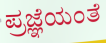
ಪ್ರಜ್ಞೆಯಂತೆ